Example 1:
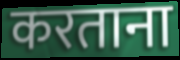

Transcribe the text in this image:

करताना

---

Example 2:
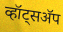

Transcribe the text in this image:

व्हॉट्सॲप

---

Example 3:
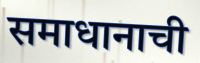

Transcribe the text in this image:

समाधानाची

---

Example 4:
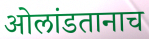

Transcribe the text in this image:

ओलांडतानाच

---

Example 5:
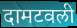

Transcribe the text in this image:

दामटवली